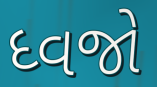
ધ્વજો